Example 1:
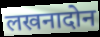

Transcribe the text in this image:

लखनादोन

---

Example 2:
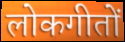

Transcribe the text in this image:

लोकगीतों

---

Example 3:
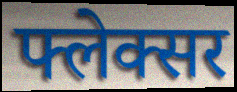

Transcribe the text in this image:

फ्लेक्सर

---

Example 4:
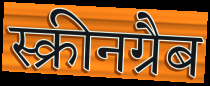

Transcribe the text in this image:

स्क्रीनग्रैब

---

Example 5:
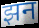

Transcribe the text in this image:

झन